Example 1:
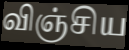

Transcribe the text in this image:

விஞ்சிய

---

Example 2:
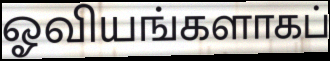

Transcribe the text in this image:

ஓவியங்களாகப்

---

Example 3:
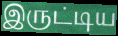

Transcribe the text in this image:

இருட்டிய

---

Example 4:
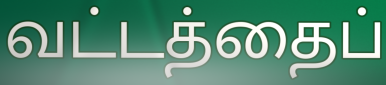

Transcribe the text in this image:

வட்டத்தைப்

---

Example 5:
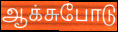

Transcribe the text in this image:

ஆக்சுபோடு